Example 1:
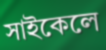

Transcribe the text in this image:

সাইকেলে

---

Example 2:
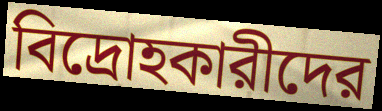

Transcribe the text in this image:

বিদ্রোহকারীদের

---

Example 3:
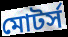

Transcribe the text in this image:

মোটর্স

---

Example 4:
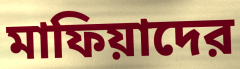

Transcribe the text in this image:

মাফিয়াদের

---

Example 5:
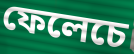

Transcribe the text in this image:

ফেলেচে